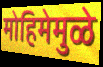
मोहिमेमुळे